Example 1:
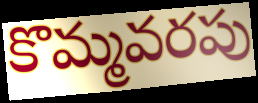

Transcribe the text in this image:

కొమ్మవరపు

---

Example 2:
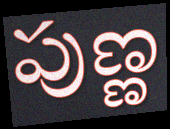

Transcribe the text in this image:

పుణ్ణ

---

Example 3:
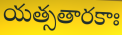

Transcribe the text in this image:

యత్సతారకాః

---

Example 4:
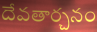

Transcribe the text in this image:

దేవతార్చనం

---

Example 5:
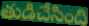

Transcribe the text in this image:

తుడిచేసింది